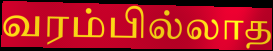
வரம்பில்லாத